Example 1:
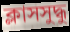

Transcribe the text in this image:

ক্লাসসুদ্ধু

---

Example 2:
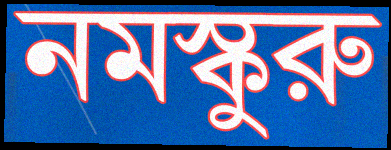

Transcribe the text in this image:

নমস্কুরু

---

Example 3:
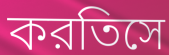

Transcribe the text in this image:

করতিসে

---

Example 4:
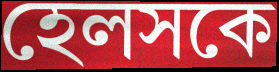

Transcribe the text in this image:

হেলসকে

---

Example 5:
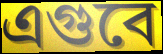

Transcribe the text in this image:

এগুবে